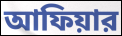
আফিয়ার